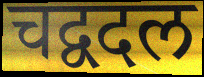
चद्वदल